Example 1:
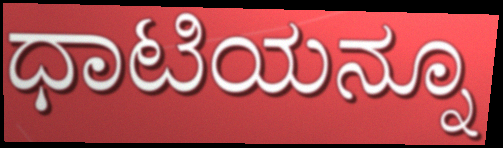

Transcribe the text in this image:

ಧಾಟಿಯನ್ನೂ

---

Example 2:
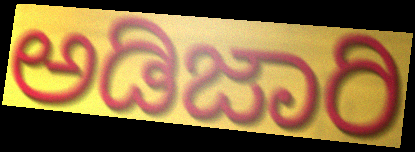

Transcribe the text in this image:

ಅಡಿಜಾರಿ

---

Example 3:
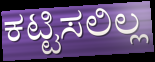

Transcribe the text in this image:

ಕಟ್ಟಿಸಲಿಲ್ಲ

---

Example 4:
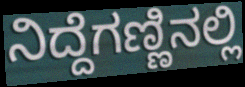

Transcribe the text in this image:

ನಿದ್ದೆಗಣ್ಣಿನಲ್ಲಿ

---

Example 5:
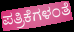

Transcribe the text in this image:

ಪತ್ರಿಕೆಗಳಂತೆ